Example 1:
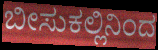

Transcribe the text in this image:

ಬೀಸುಕಲ್ಲಿನಿಂದ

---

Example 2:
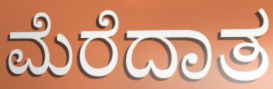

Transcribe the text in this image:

ಮೆರೆದಾತ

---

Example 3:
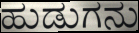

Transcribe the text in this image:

ಹುಡುಗನು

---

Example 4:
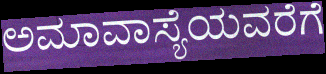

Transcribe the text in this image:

ಅಮಾವಾಸ್ಯೆಯವರೆಗೆ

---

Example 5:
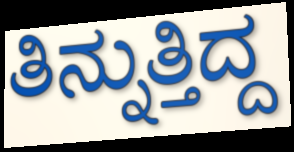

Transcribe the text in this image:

ತಿನ್ನುತ್ತಿದ್ದ